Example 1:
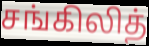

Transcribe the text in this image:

சங்கிலித்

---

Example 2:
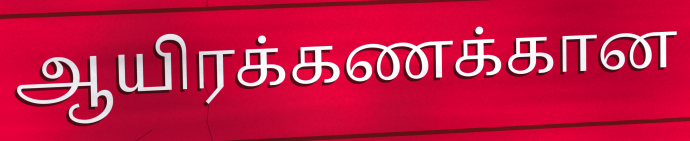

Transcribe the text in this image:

ஆயிரக்கணக்கான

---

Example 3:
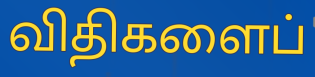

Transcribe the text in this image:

விதிகளைப்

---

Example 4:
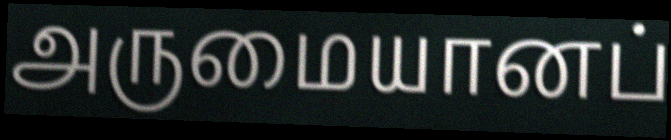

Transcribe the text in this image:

அருமையானப்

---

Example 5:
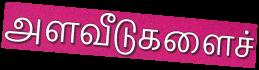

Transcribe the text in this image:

அளவீடுகளைச்